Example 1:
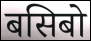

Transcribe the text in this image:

बसिबो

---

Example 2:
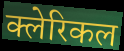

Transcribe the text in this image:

क्लेरिकल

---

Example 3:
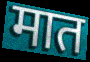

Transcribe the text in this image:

मात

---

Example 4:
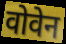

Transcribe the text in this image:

वोवेन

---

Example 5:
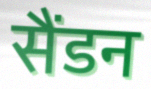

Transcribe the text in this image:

सैंडन